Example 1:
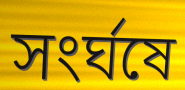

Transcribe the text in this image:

সংর্ঘষে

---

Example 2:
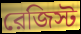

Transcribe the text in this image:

রেজিস্ট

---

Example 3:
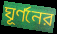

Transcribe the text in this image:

ঘূর্ণনের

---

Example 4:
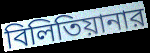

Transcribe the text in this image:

বিলিতিয়ানার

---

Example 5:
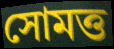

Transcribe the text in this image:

সোমত্ত